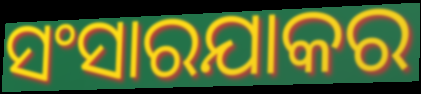
ସଂସାରଯାକର